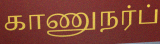
காணுநர்ப்